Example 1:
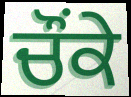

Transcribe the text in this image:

ਚੌਂਕੇ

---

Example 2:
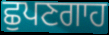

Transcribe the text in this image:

ਛੁਪਣਗਾਹ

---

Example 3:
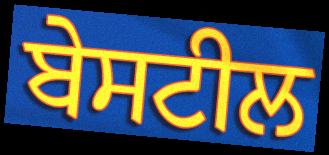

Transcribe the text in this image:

ਬੇਸਟੀਲ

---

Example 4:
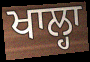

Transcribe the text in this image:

ਖਾਲ੍ਹਾ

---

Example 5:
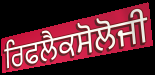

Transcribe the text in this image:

ਰਿਫਲੈਕਸੋਲੋਜੀ